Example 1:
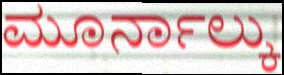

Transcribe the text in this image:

ಮೂರ್ನಾಲ್ಕು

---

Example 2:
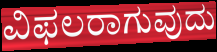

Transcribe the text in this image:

ವಿಫಲರಾಗುವುದು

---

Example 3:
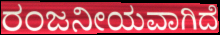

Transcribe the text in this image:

ರಂಜನೀಯವಾಗಿದೆ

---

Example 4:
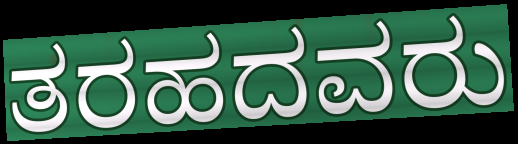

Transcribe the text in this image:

ತರಹದವರು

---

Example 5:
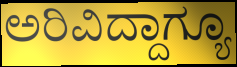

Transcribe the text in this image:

ಅರಿವಿದ್ದಾಗ್ಯೂ